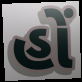
હોં